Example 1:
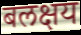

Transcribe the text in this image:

बलक्षय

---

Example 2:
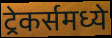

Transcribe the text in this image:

ट्रेकर्समध्ये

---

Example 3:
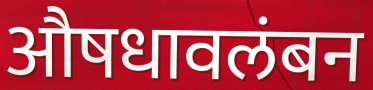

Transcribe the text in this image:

औषधावलंबन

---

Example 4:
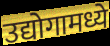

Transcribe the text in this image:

उद्योगामध्ये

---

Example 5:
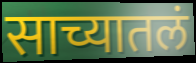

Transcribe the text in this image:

साच्यातलं